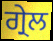
ਗ੍ਰੇਲ